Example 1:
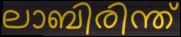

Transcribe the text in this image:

ലാബിരിന്ത്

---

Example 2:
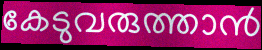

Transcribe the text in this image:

കേടുവരുത്താൻ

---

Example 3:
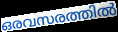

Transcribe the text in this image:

ഒരവസരത്തിൽ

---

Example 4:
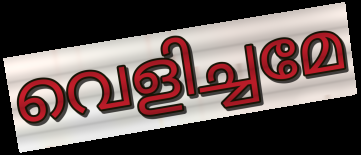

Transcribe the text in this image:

വെളിച്ചമേ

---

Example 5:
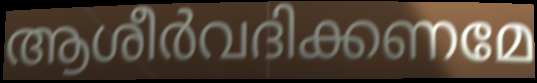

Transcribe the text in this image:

ആശീർവദിക്കണമേ